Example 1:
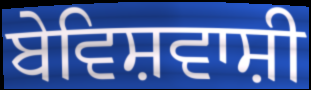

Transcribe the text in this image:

ਬੇਵਿਸ਼ਵਾਸ਼ੀ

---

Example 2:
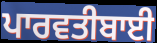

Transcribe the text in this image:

ਪਾਰਵਤੀਬਾਈ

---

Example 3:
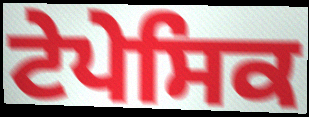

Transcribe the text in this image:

ਟੇਪੇਸਿਕ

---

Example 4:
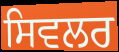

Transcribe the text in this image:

ਸਿਵਲਰ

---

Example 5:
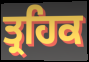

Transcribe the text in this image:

ਤ੍ਰਹਿਕ